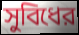
সুবিধের